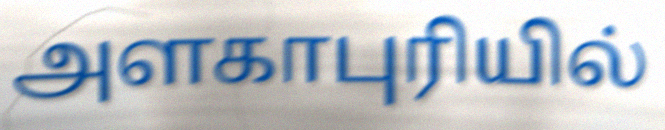
அளகாபுரியில்